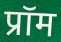
प्रॉम